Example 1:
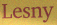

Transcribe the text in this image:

Lesny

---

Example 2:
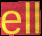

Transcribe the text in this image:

ell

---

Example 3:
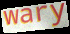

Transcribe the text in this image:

wary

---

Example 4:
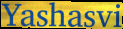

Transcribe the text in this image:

Yashasvi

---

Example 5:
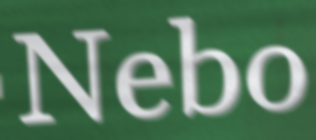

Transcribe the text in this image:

Nebo